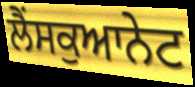
ਲੈਂਸਕੁਆਨੇਟ